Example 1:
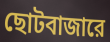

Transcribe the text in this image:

ছোটবাজারে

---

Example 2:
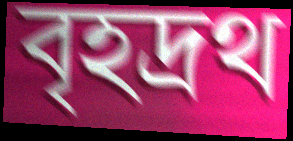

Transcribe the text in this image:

বৃহদ্রথ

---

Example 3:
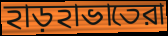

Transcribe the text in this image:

হাড়হাভাতেরা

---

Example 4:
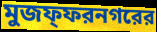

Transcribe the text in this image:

মুজফ্ফরনগরের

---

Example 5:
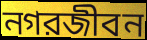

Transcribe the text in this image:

নগরজীবন